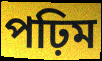
পঢ়িম